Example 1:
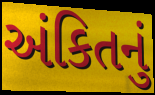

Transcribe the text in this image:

અંકિતનું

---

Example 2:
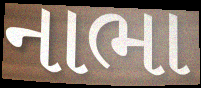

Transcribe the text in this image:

નાભા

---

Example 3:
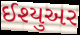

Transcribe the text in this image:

ઈશ્યુઅર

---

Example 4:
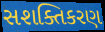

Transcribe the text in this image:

સશક્તિકરણ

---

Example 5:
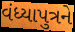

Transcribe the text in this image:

વંધ્યાપુત્રને